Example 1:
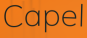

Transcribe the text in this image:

Capel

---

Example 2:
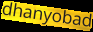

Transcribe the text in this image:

dhanyobad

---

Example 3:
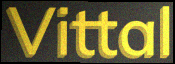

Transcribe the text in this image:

Vittal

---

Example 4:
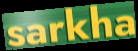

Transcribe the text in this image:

sarkha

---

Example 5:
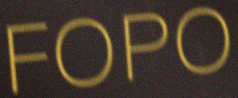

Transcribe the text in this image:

FOPO